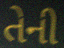
તેની